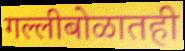
गल्लीबोळातही